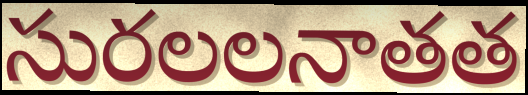
సురలలనాతత